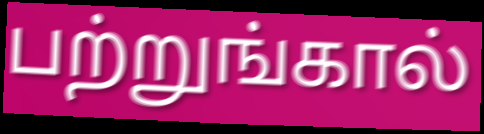
பற்றுங்கால்